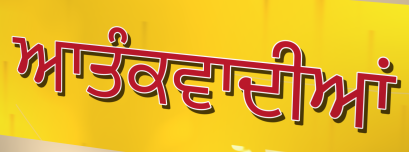
ਆਤੰਕਵਾਦੀਆਂ